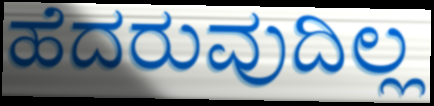
ಹೆದರುವುದಿಲ್ಲ